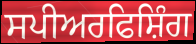
ਸਪੀਅਰਫਿਸ਼ਿੰਗ